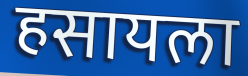
हसायला